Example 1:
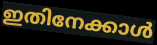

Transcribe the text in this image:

ഇതിനേക്കാൾ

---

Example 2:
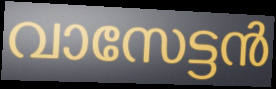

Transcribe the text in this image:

വാസേട്ടൻ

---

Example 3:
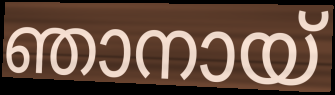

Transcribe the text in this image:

ഞാനായ്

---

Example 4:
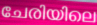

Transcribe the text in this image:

ചേരിയിലെ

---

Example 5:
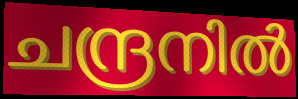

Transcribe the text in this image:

ചന്ദ്രനിൽ